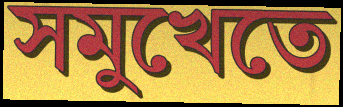
সমুখেতে